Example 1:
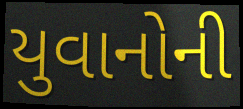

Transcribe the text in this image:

યુવાનોની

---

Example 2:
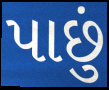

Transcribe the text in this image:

પાછું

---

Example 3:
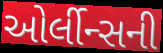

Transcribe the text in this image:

ઓર્લીન્સની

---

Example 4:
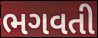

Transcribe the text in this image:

ભગવતી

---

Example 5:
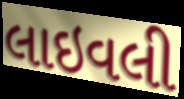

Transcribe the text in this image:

લાઇવલી